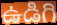
ఉడిగి